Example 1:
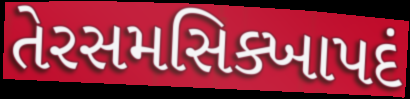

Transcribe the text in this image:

તેરસમસિક્ખાપદં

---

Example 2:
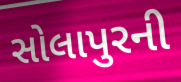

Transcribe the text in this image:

સોલાપુરની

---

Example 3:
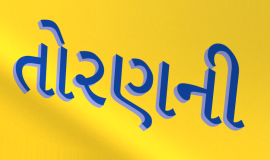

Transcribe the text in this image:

તોરણની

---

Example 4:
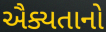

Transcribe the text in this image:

ઐક્યતાનો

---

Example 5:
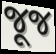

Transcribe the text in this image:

જૂજ